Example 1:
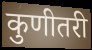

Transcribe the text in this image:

कुणीतरी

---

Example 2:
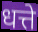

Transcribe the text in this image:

धत्ते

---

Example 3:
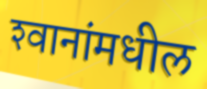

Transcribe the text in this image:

श्वानांमधील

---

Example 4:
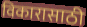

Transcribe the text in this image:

विकारासाठी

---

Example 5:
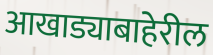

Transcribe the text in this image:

आखाड्याबाहेरील